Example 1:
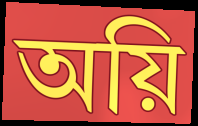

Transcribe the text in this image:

অয়ি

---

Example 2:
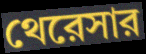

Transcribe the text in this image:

থেরেসার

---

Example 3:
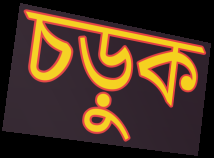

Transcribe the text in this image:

চড়ুক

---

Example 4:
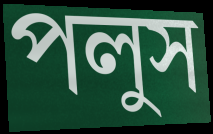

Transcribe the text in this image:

পলুস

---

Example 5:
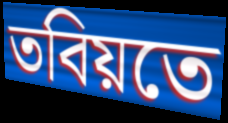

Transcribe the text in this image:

তবিয়তে